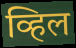
व्हिल